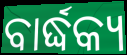
ବାର୍ଦ୍ଧକ୍ୟ